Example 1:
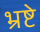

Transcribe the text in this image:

भ्रष्टे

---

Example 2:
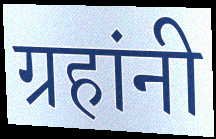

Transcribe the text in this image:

ग्रहांनी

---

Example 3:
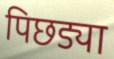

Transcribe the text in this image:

पिछड्या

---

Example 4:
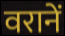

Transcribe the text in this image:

वरानें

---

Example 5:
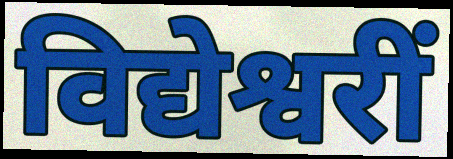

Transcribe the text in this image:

विद्येश्वरीं